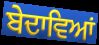
ਬੇਦਾਵਿਆਂ